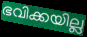
ഭവിക്കയില്ല